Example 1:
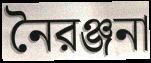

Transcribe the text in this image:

নৈরঞ্জনা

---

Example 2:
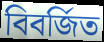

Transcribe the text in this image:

বিবর্জিত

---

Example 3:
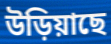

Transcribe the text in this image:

উড়িয়াছে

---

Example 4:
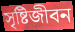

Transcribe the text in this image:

সৃষ্টিজীবন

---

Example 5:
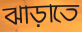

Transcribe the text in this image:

ঝাড়াতে